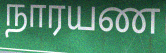
நாரயண